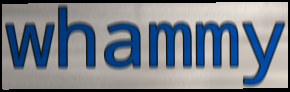
whammy